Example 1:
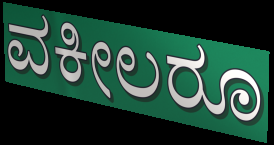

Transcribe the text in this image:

ವಕೀಲರೂ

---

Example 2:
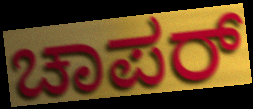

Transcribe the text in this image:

ಚಾಪರ್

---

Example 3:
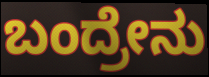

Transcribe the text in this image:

ಬಂದ್ರೇನು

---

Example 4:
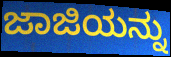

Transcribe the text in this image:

ಜಾಜಿಯನ್ನು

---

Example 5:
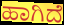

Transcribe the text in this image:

ಹಾಗಿದೆ